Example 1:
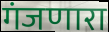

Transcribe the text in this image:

गंजणारा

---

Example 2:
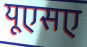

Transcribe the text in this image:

यूएसए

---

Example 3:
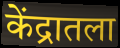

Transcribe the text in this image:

केंद्रातला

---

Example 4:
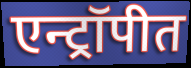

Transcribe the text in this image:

एन्ट्रॉपीत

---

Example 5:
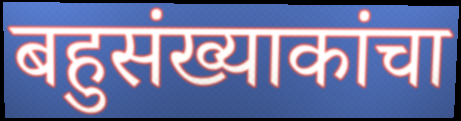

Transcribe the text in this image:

बहुसंख्याकांचा